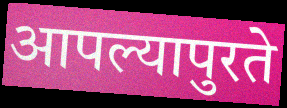
आपल्यापुरते